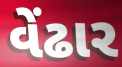
વેંઢાર